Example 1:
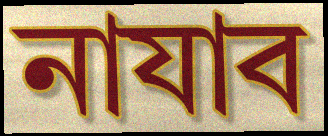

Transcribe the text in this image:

নাযাব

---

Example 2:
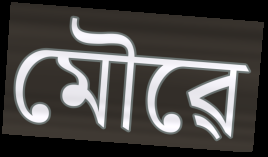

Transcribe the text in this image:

মৌৱে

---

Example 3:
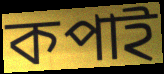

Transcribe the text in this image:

কপাই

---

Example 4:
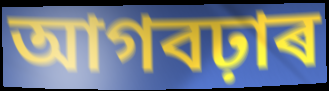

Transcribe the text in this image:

আগবঢ়াৰ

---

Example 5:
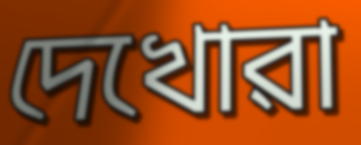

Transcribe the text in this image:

দেখোৱা